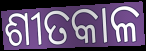
ଶୀତକାଳ